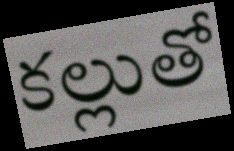
కల్లుతో